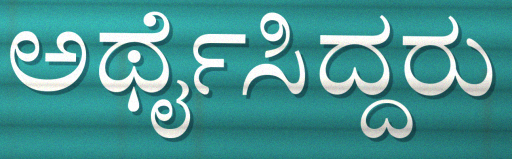
ಅರ್ಥೈಸಿದ್ದರು